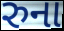
રુના